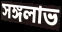
সঙ্গলাভ